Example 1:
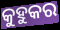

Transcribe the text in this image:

କୁହୁକର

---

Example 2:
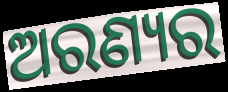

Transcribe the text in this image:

ଅରଣ୍ୟର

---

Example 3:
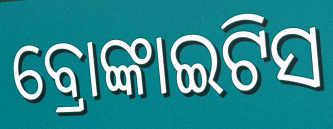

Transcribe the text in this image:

ବ୍ରୋଙ୍କାଇଟିସ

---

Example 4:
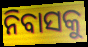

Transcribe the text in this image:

ନିବାସକୁ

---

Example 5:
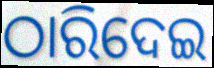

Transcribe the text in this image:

ଠାରିଦେଇ